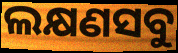
ଲକ୍ଷଣସବୁ